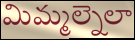
మిమ్మల్నెలా